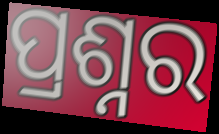
ପ୍ରଶ୍ନର